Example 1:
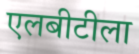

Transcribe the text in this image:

एलबीटीला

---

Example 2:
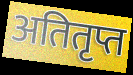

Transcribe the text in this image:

अतितृप्त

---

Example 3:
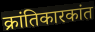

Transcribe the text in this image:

क्रांतिकारकांत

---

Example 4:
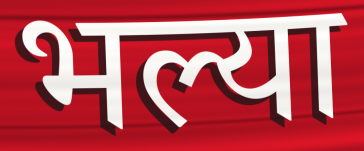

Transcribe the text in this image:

भल्या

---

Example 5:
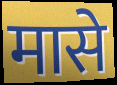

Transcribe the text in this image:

मासे